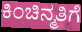
ಕಿಂಚಿನ್ಮತಿಗೆ